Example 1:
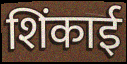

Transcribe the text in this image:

शिंकाई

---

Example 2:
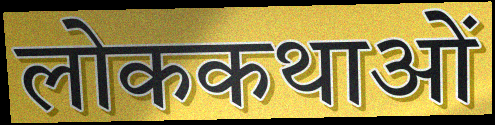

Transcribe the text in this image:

लोककथाओं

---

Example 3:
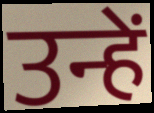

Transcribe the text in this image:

उन्‍हें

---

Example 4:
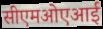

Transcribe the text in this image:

सीएमओएआई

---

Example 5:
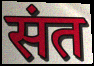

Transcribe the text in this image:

संत